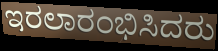
ಇರಲಾರಂಭಿಸಿದರು